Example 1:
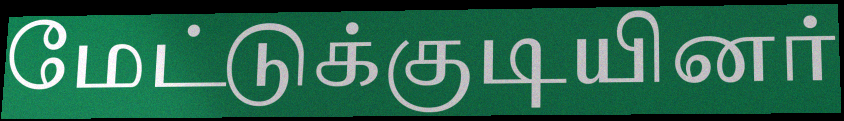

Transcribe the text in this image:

மேட்டுக்குடியினர்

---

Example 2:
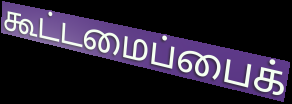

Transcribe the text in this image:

கூட்டமைப்பைக்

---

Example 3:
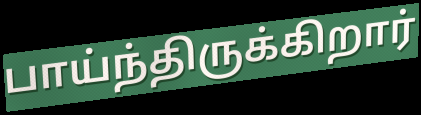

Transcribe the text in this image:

பாய்ந்திருக்கிறார்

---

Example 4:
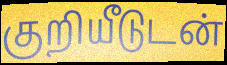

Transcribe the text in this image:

குறியீடுடன்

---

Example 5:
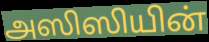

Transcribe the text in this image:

அஸிஸியின்